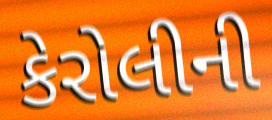
કેરોલીની